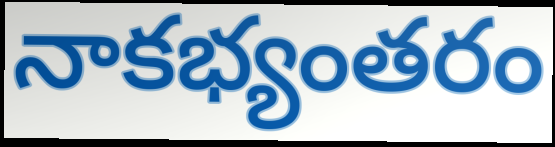
నాకభ్యంతరం